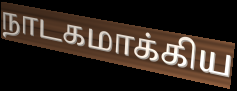
நாடகமாக்கிய